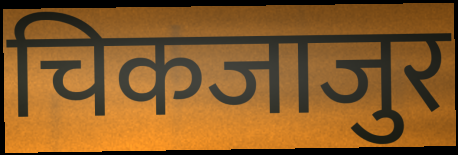
चिकजाजुर